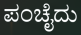
ಪಂಚೈದು